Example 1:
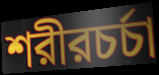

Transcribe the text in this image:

শরীরচর্চা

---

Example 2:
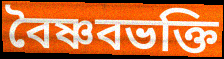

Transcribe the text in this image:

বৈষ্ণবভক্তি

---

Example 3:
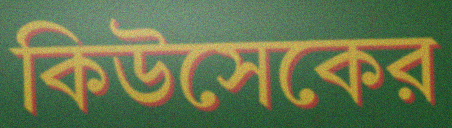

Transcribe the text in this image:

কিউসেকের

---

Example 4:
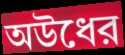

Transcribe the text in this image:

অউধের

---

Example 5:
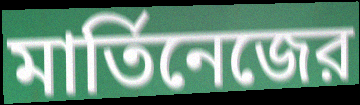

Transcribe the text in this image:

মার্তিনেজের